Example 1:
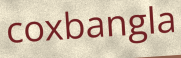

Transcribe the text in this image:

coxbangla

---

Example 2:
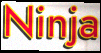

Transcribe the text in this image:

Ninja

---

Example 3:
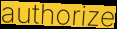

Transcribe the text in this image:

authorize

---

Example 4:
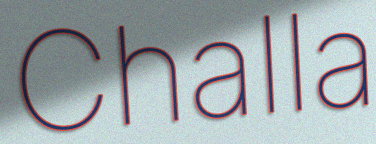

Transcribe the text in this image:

Challa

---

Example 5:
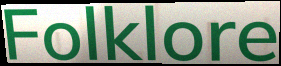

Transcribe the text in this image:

Folklore